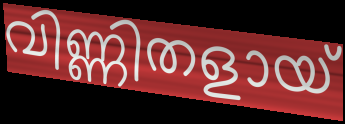
വിണ്ണിതളായ്